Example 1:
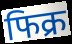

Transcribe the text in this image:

फिक्र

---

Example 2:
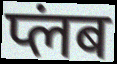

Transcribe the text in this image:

प्लंब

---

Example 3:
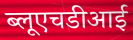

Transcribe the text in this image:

ब्लूएचडीआई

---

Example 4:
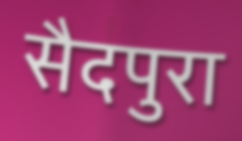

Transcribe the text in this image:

सैदपुरा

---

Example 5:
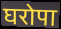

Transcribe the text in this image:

घरोपा